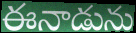
ఈనాడును